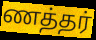
ணத்தர்